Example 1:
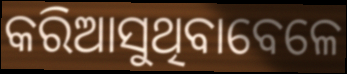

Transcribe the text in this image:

କରିଆସୁଥିବାବେଳେ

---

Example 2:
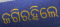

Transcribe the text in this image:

ଜଗିରହିଲେ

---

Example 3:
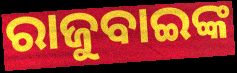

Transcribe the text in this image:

ରାଜୁବାଇଙ୍କ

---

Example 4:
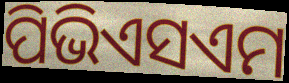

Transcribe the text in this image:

ପିଭିଏସଏମ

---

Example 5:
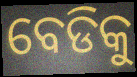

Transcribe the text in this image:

ବେଡିକୁ